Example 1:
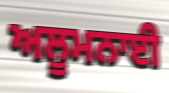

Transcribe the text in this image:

ਅਲੂਮਨਾਈ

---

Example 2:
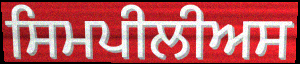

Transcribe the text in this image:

ਸਿਮਪੀਲੀਅਸ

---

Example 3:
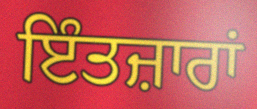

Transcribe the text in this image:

ਇੰਤਜ਼ਾਰਾਂ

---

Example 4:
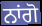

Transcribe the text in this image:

ਨਾਂਗੋ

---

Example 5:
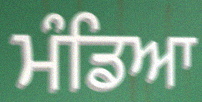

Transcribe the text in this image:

ਮੰਡਿਆ